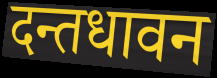
दन्तधावन